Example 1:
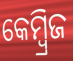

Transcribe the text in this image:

କେମ୍ବ୍ରିଜ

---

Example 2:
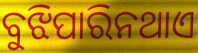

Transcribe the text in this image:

ବୁଝିପାରିନଥାଏ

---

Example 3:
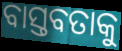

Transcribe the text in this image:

ବାସ୍ତବତାକୁ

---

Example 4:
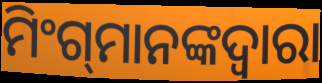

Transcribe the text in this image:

ମିଂଗ୍‍ମାନଙ୍କଦ୍ୱାରା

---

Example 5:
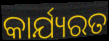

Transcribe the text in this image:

କାର୍ଯ୍ୟରତ